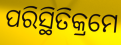
ପରିସ୍ଥିତିକ୍ରମେ